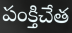
పంక్తిచేత